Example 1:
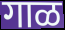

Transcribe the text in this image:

गाळ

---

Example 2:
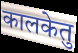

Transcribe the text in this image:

कालकेतु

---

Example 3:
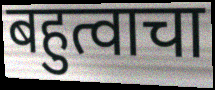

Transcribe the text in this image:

बहुत्वाचा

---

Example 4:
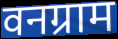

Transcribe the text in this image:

वनग्राम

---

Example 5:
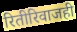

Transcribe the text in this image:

रितीरिवाजही